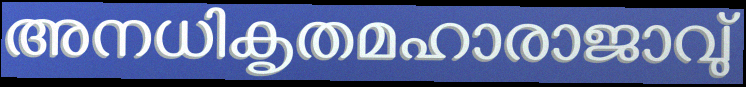
അനധികൃതമഹാരാജാവു്